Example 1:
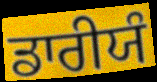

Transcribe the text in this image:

ਡਾਰੀਯੰ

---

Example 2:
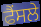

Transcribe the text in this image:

ਫੈਂਸਲੇ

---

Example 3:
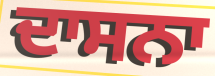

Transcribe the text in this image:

ਦਾਸਨਾ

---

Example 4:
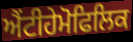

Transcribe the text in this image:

ਐਂਟੀਹੇਮੋਫਿਲਿਕ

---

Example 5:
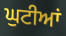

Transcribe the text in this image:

ਘੁਟੀਆਂ